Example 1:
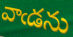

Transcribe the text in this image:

వాఁడను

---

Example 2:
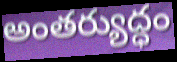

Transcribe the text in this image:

అంతర్యుద్ధం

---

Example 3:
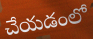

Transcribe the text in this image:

చేయడంలో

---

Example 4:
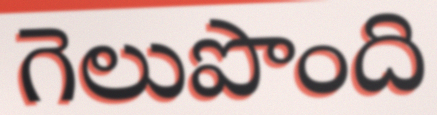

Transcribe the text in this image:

గెలుపొంది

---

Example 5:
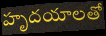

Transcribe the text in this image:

హృదయాలతో